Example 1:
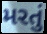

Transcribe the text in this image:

મરતું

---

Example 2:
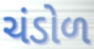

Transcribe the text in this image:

ચંડોળ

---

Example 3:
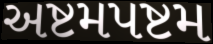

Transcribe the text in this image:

અષ્ટમપષ્ટમ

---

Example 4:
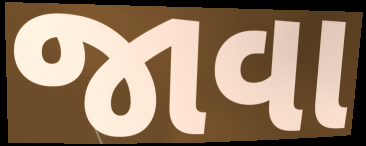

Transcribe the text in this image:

જાવા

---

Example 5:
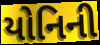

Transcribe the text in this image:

યોનિની